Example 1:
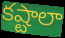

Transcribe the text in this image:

కష్టాలా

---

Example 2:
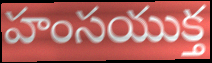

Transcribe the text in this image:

హంసయుక్త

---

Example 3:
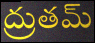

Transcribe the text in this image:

ద్రుతమ్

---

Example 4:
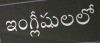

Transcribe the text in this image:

ఇంగ్లీషులలో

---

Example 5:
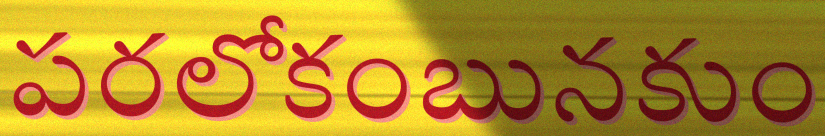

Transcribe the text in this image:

పరలోకంబునకుం